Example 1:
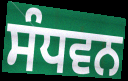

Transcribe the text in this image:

ਸੰਧਵਨ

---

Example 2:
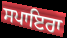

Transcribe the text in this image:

ਸਪਾਇਰਾ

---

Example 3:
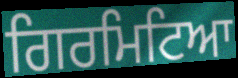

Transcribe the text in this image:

ਗਿਰਮਿਟਿਆ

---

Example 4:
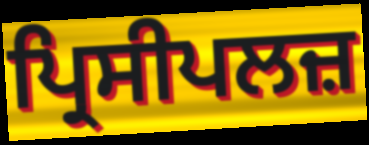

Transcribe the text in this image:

ਪ੍ਰਿਸੀਪਲਜ਼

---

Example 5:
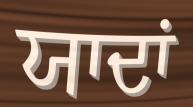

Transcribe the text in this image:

ਯਾਦਾਂ